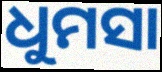
ଧୁମସା